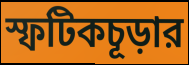
স্ফটিকচূড়ার